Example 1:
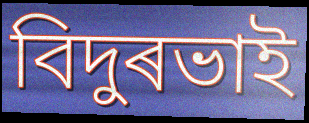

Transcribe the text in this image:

বিদুৰভাই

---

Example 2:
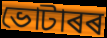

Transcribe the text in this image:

ভোটাৰৰ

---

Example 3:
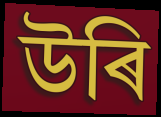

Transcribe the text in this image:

উৰি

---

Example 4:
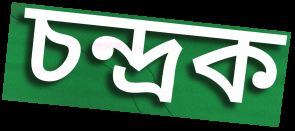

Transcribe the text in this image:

চন্দ্ৰক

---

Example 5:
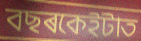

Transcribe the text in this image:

বছৰকেইটাত